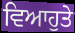
ਵਿਆਹੁਤੇ